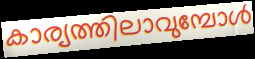
കാര്യത്തിലാവുമ്പോൾ